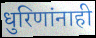
धुरिणांनाही